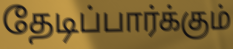
தேடிப்பார்க்கும்